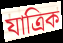
যাত্ৰিক